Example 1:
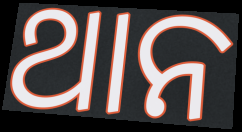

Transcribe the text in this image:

ଥାନ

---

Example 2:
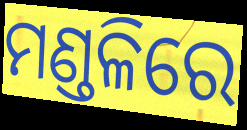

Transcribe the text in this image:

ମଣ୍ଡଳିରେ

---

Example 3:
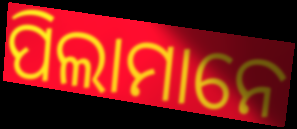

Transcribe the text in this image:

ପିଲାମାନେ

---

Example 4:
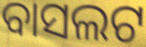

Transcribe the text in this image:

ବାସଲଟ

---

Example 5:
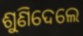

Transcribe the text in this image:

ଶୁଣିଦେଲେ